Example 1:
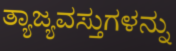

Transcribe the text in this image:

ತ್ಯಾಜ್ಯವಸ್ತುಗಳನ್ನು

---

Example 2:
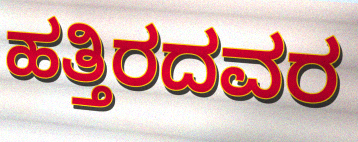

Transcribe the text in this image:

ಹತ್ತಿರದವರ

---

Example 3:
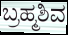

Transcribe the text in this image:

ಬ್ರಹ್ಮಶಿವ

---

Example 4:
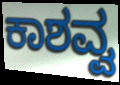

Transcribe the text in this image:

ಕಾಶವ್ವ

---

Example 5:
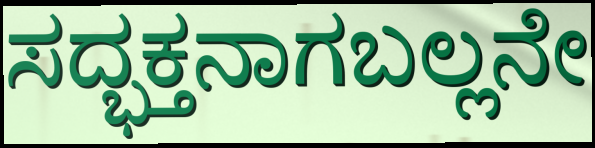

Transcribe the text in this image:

ಸದ್ಭಕ್ತನಾಗಬಲ್ಲನೇ